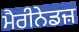
ਮੈਰੀਨੇਡਜ਼